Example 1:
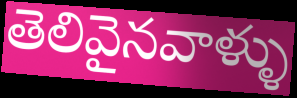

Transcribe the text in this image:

తెలివైనవాళ్ళు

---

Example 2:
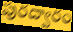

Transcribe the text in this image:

పురద్వారం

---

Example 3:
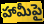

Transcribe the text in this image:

హామీపై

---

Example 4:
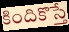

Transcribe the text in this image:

కిందికొస్తే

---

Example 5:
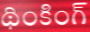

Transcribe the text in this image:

థింకింగ్